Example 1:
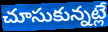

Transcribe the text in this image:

చూసుకున్నట్లే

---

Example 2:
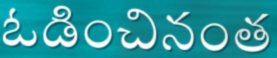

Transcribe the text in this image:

ఓడించినంత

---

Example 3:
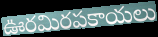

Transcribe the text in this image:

ఊరమిరపకాయలు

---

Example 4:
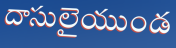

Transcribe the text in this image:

దాసులైయుండ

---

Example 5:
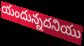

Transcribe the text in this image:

యందున్నదనియు